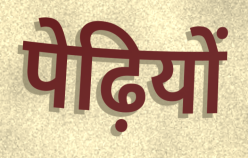
पेढ़ियों